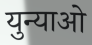
युन्याओ